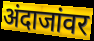
अंदाजांवर